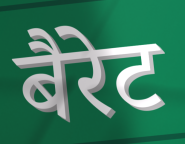
बैरेट